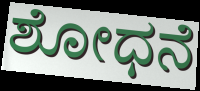
ಶೋಧನೆ